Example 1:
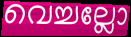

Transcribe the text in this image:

വെച്ചല്ലോ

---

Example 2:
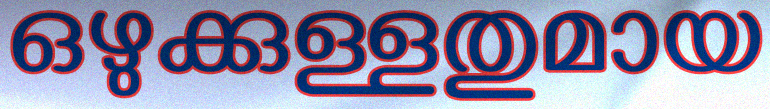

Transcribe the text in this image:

ഒഴുക്കുള്ളതുമായ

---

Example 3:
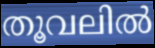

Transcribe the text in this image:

തൂവലിൽ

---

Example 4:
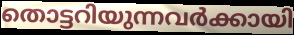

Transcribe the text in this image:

തൊട്ടറിയുന്നവർക്കായി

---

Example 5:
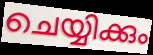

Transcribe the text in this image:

ചെയ്യിക്കും